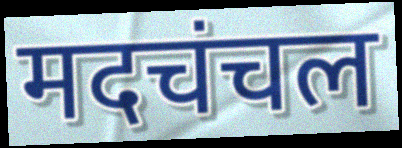
मदचंचल